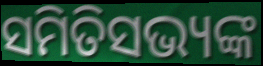
ସମିତିସଭ୍ୟଙ୍କ